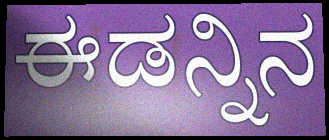
ಈಡನ್ನಿನ